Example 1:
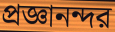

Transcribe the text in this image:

প্রজ্ঞানন্দর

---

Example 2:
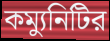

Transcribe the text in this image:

কম্যুনিটির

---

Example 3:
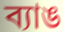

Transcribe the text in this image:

ব্যাঙ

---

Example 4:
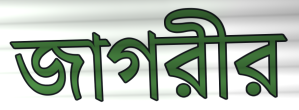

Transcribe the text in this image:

জাগরীর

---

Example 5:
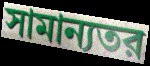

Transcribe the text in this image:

সামান্যতর